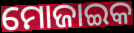
ମୋଜାଇକ